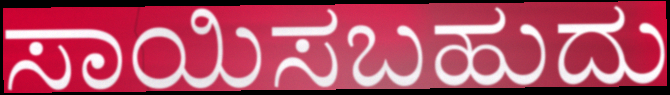
ಸಾಯಿಸಬಹುದು